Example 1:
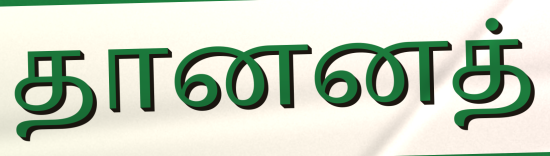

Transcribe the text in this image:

தானனத்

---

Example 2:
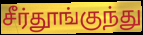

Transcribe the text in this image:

சீர்தூங்குந்து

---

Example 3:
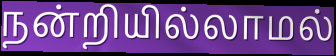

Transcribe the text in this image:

நன்றியில்லாமல்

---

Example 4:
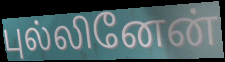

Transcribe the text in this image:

புல்லினேன்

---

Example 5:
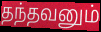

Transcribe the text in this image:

தந்தவனும்